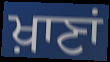
ਖ਼ਾਣਾਂ